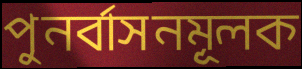
পুনর্বাসনমূলক